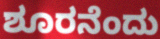
ಶೂರನೆಂದು